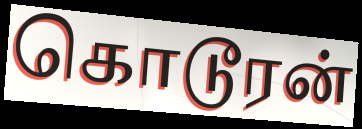
கொடூரன்